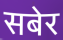
सबेर